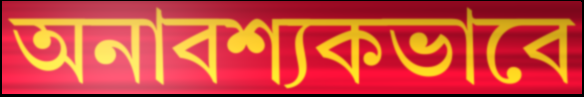
অনাবশ্যকভাবে